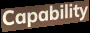
Capability